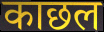
काछल